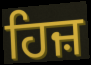
ਹਿਜ਼